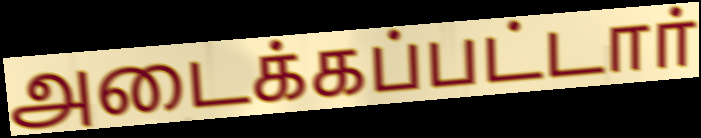
அடைக்கப்பட்டார்